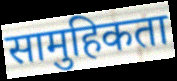
सामुहिकता